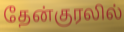
தேன்குரலில்